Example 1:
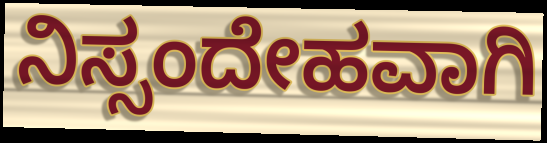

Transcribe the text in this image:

ನಿಸ್ಸಂದೇಹವಾಗಿ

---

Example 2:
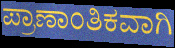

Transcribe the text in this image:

ಪ್ರಾಣಾಂತಿಕವಾಗಿ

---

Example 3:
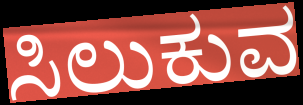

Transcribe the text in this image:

ಸಿಲುಕುವ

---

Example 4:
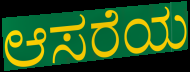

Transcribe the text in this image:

ಆಸರೆಯ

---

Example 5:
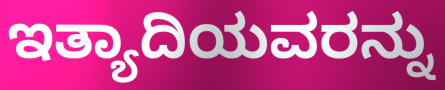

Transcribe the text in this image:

ಇತ್ಯಾದಿಯವರನ್ನು